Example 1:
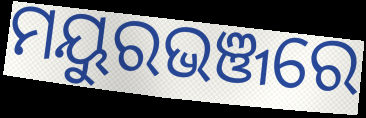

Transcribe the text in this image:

ମୟୁରଭଞ୍ଜରେ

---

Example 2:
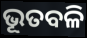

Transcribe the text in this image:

ଭୂତବଳି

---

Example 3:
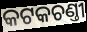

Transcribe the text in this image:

କଟକଚଣ୍ତୀ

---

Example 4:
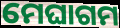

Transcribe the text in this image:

ମେଘାଗମ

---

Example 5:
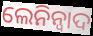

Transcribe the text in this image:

ଲେନିନ୍ବାଦ